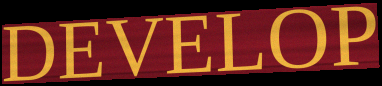
DEVELOP